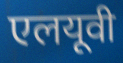
एलयूवी